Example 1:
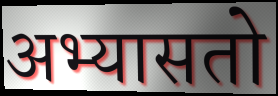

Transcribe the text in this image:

अभ्यासतो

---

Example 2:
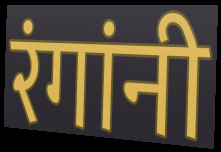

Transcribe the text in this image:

रंगांनी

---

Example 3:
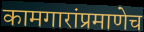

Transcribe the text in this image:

कामगारांप्रमाणेच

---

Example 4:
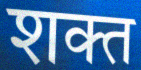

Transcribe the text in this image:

शक्त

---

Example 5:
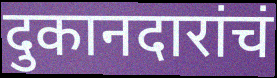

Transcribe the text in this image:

दुकानदारांचं